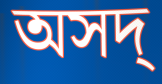
অসদ্